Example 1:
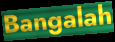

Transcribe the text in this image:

Bangalah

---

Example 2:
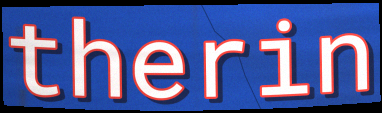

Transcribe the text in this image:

therin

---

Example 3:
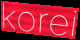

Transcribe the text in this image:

korei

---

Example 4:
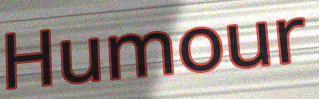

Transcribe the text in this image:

Humour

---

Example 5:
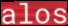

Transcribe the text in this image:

alos